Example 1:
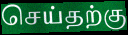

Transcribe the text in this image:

செய்தற்கு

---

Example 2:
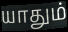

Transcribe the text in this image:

யாதும்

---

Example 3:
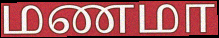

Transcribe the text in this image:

மணமா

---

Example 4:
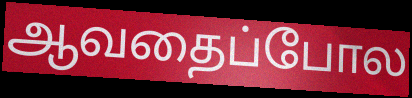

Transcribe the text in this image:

ஆவதைப்போல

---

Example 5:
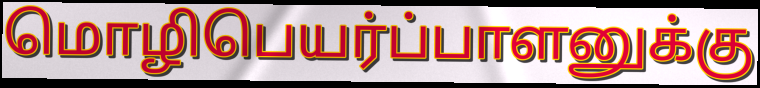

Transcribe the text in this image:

மொழிபெயர்ப்பாளனுக்கு